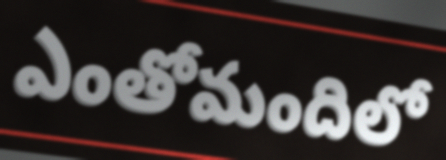
ఎంతోమందిలో